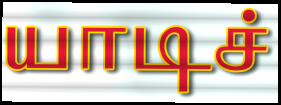
யாடிச்